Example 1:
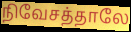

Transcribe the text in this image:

நிவேசத்தாலே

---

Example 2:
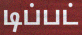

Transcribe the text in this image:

டிப்பட்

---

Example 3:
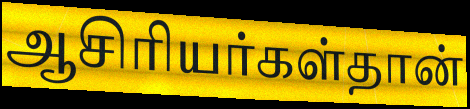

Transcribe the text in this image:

ஆசிரியர்கள்தான்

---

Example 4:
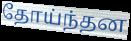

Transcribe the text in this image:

தோய்ந்தன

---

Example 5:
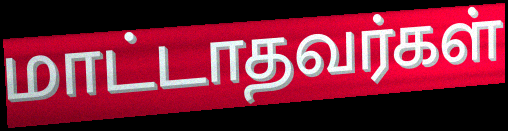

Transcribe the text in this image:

மாட்டாதவர்கள்